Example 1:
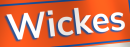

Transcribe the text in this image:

Wickes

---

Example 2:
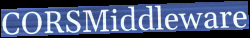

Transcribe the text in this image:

CORSMiddleware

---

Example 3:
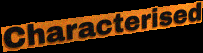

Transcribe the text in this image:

Characterised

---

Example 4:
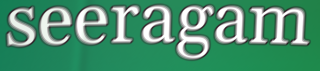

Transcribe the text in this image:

seeragam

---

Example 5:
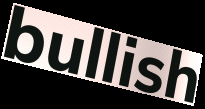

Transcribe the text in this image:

bullish